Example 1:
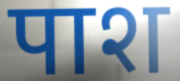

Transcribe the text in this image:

पाश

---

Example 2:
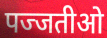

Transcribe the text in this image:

पज्जतीओ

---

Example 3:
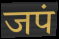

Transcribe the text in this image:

जपं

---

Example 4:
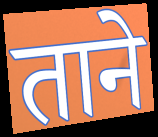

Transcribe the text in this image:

ताने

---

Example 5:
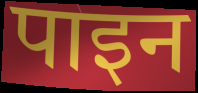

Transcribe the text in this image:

पाइन